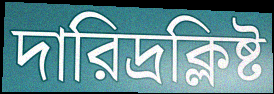
দারিদ্রক্লিষ্ট